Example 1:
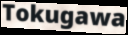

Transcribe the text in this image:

Tokugawa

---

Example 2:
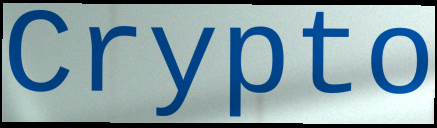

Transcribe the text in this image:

Crypto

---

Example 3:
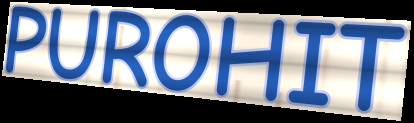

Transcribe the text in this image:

PUROHIT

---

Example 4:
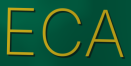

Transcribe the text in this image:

ECA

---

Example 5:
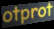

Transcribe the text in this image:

otprot